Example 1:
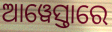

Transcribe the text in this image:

ଆୱେସ୍ତାରେ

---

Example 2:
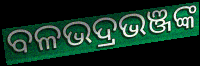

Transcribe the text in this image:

ବଳଭଦ୍ରଭଞ୍ଜଙ୍କ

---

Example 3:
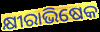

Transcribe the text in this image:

କ୍ଷୀରାଭିଷେକ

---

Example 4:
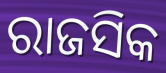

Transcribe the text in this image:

ରାଜସିକ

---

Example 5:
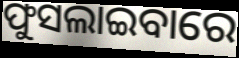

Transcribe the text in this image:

ଫୁସଲାଇବାରେ